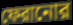
ফেরানোর